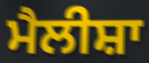
ਮੈਲੀਸ਼ਾ